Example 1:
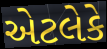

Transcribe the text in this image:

એટલેકે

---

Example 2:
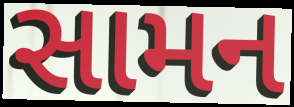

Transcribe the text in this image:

સામન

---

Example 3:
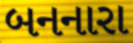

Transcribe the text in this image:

બનનારા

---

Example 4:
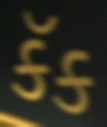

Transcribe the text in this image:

કૅક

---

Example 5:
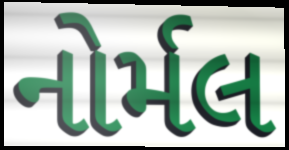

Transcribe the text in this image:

નોર્મલ